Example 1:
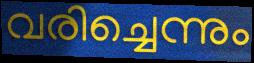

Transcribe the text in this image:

വരിച്ചെന്നും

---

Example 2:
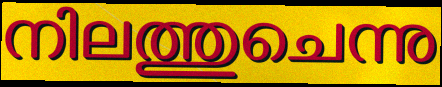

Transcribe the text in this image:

നിലത്തുചെന്നു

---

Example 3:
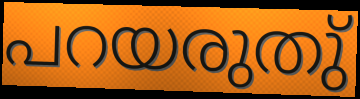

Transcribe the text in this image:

പറയരുതു്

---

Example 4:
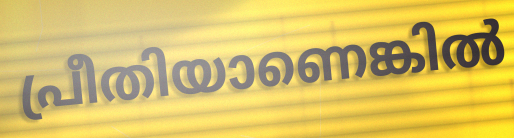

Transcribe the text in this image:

പ്രീതിയാണെങ്കിൽ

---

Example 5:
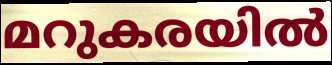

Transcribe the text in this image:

മറുകരയിൽ